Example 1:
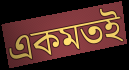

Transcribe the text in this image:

একমতই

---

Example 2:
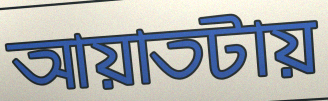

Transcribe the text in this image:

আয়াতটায়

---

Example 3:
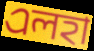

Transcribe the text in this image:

এলহা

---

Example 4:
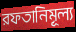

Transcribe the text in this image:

রফতানিমূল্য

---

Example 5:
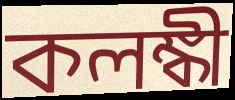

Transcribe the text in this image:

কলঙ্কী